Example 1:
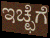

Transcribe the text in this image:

ಇಚ್ಛೆಗೆ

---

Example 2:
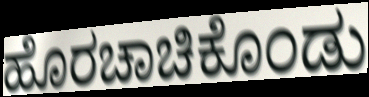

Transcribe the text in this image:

ಹೊರಚಾಚಿಕೊಂಡು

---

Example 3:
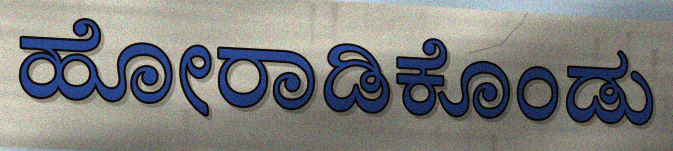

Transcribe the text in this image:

ಹೋರಾಡಿಕೊಂಡು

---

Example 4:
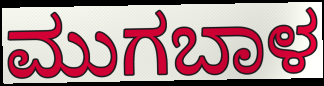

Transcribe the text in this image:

ಮುಗಬಾಳ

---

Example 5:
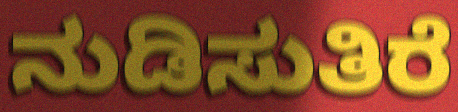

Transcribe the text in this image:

ನುಡಿಸುತಿರೆ